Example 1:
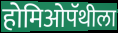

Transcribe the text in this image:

होमिओपॅथीला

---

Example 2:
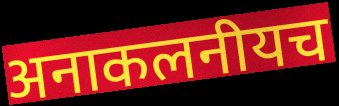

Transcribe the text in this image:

अनाकलनीयच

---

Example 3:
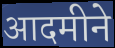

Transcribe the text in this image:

आदमीने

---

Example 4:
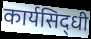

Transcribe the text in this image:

कार्यसिद्धी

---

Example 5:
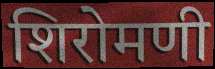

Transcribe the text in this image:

शिरोमणी